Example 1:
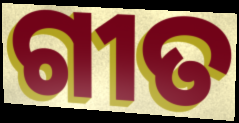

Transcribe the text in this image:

ଗୀତ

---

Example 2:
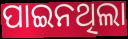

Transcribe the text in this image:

ପାଇନଥିଲା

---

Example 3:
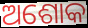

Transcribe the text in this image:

ଅଶୋକ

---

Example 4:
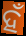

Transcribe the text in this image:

ହଁ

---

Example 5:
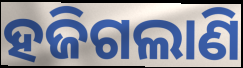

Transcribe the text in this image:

ହଜିଗଲାଣି